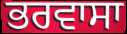
ਭਰਵਾਸਾ